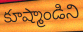
కూష్మాండిని